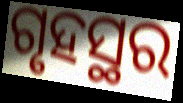
ଗୃହସ୍ଥର